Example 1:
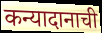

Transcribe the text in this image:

कन्यादानाची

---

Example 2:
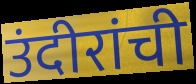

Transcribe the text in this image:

उंदीरांची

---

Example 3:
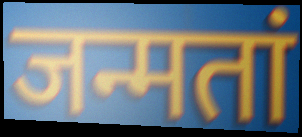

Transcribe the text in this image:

जन्मतां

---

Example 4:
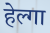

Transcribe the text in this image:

हेल्गा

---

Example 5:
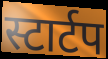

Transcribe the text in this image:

स्टार्टप